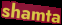
shamta